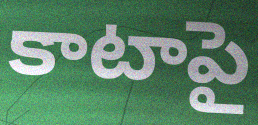
కాటాపై